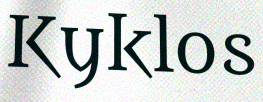
Kyklos